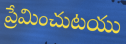
ప్రేమించుటయు